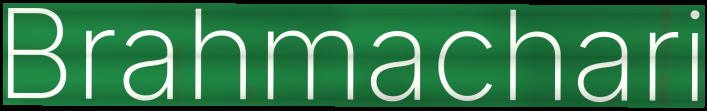
Brahmachari